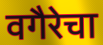
वगैरेचा